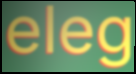
eleg